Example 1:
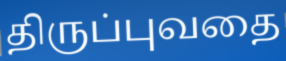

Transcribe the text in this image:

திருப்புவதை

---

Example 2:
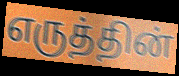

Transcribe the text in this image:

எருத்தின்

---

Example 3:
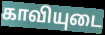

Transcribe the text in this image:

காவியுடை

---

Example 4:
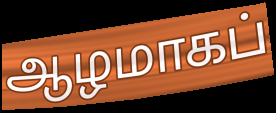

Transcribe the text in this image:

ஆழமாகப்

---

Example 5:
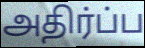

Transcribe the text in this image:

அதிர்ப்ப